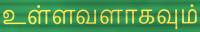
உள்ளவளாகவும்